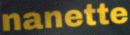
nanette